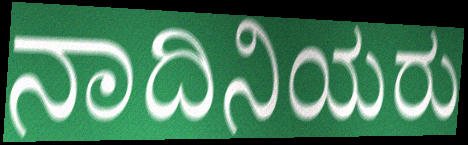
ನಾದಿನಿಯರು